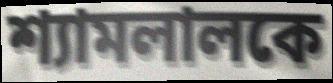
শ্যামলালকে